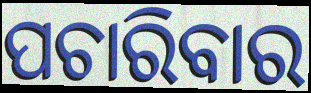
ପଚାରିବାର